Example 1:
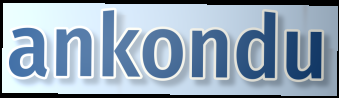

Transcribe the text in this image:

ankondu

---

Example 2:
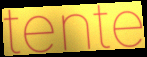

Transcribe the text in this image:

tente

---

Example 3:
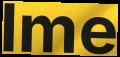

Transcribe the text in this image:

Ime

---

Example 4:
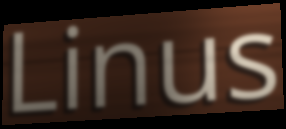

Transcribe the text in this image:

Linus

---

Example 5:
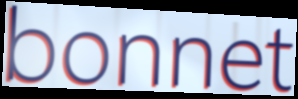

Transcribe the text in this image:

bonnet